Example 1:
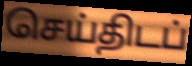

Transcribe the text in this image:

செய்திடப்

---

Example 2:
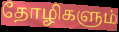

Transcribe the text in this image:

தோழிகளும்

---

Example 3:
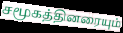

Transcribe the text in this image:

சமூகத்தினரையும்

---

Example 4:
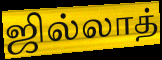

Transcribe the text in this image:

ஜில்லாத்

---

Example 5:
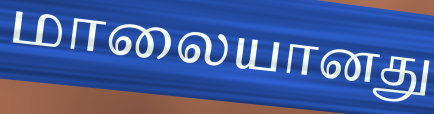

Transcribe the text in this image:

மாலையானது